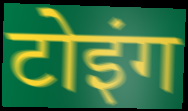
टोइंग